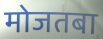
मोजतबा